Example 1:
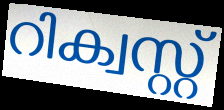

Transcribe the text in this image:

റിക്വസ്റ്റ്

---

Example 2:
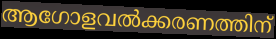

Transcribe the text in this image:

ആഗോളവൽക്കരണത്തിന്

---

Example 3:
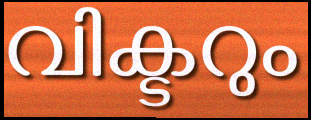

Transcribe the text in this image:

വിക്ടറും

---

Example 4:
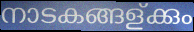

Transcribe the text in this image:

നാടകങ്ങള്ക്കും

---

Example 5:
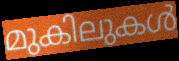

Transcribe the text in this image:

മുകിലുകൾ